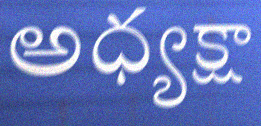
అధ్యక్షా